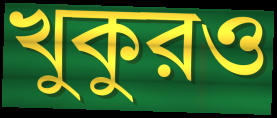
খুকুরও